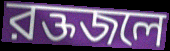
রক্তজলে